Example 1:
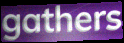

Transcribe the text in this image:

gathers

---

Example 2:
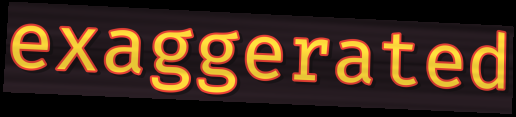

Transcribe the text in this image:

exaggerated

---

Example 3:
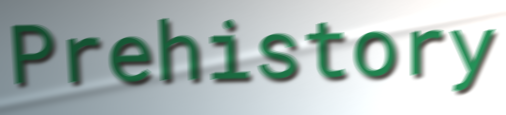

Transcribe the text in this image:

Prehistory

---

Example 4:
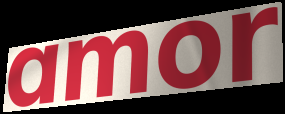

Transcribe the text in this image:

amor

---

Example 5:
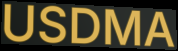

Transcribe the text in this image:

USDMA